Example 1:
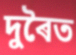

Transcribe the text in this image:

দুৰৈত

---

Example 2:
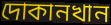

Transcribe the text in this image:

দোকানখান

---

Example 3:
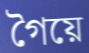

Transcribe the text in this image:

গৈয়ে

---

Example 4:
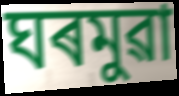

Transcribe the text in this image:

ঘৰমুৱা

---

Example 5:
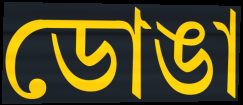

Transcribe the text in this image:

ডোঙা